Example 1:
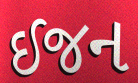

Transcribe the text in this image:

ઈજન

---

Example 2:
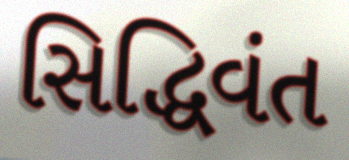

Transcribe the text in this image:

સિદ્ધિવંત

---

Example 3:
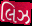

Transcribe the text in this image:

લિઝ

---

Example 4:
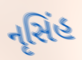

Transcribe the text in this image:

નૃસિંહ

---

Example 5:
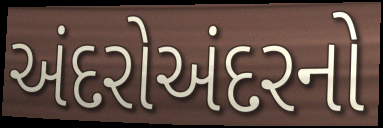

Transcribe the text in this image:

અંદરોઅંદરનો